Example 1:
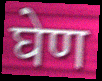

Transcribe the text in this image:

घेण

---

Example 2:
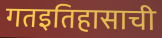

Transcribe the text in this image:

गतइतिहासाची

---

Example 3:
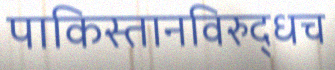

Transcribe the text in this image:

पाकिस्तानविरुद्धच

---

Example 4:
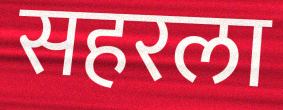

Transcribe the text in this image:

सहरला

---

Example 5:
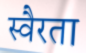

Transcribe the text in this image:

स्वैरता